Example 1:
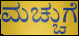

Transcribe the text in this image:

ಮಚ್ಚುಗೆ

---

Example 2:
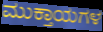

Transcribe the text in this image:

ಮುಕ್ತಾಯಗಳ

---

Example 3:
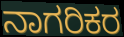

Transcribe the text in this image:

ನಾಗರಿಕರ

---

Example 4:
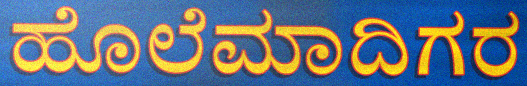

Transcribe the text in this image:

ಹೊಲೆಮಾದಿಗರ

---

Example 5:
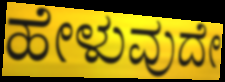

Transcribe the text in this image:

ಹೇಳುವುದೇ